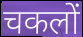
चकलों